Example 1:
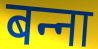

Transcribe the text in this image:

बन्ना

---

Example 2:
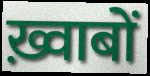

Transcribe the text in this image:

ख़्वाबों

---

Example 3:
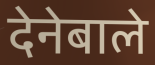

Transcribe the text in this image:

देनेबाले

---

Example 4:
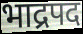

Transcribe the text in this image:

भाद्रपद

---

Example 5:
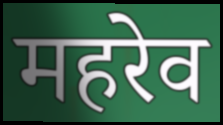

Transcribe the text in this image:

महरेव